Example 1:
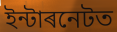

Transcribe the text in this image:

ইন্টাৰনেটত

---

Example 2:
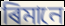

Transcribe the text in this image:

ৰিমানে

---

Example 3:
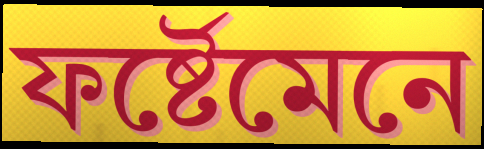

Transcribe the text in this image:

ফৰ্ষ্টেমেনে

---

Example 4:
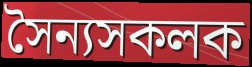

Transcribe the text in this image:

সৈন্যসকলক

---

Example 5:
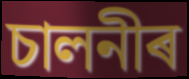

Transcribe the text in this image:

চালনীৰ